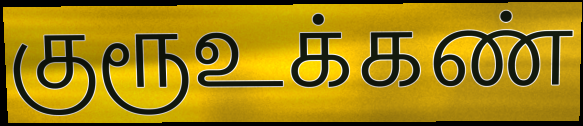
குரூஉக்கண்